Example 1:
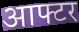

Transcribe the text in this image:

आफ्टर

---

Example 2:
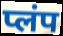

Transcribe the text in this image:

प्लंप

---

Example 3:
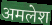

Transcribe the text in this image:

अमलेश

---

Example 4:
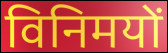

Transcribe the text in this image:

विनिमयों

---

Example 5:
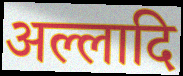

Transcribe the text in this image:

अल्लादि